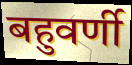
बहुवर्णी